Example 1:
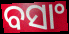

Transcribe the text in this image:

ବସାଂ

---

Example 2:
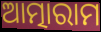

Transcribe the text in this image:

ଆତ୍ମାରାମ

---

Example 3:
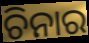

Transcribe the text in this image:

ଚିନାର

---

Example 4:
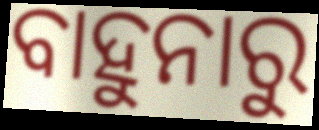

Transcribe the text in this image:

ବାହୁନାରୁ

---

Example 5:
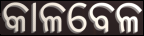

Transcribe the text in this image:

କାଳବେଳ